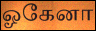
ஓகேனா